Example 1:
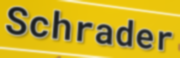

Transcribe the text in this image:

Schrader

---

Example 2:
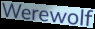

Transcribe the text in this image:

Werewolf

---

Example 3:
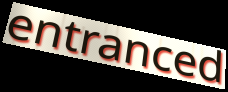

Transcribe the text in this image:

entranced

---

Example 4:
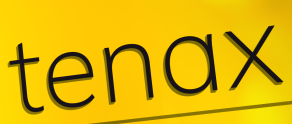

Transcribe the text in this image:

tenax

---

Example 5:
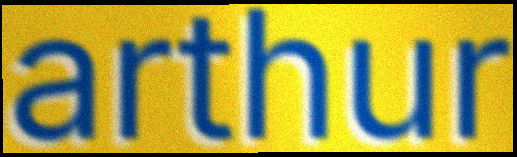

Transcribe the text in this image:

arthur